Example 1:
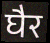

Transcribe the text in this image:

घैर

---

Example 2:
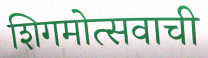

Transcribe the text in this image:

शिगमोत्सवाची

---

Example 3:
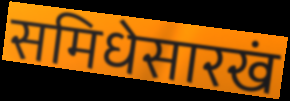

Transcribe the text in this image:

समिधेसारखं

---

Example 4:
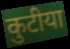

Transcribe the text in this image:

कुटीया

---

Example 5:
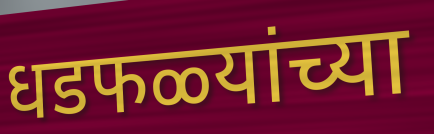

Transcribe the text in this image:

धडफळ्यांच्या